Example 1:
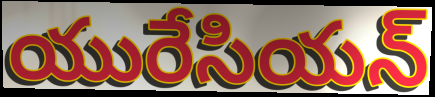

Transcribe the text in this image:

యురేసియన్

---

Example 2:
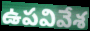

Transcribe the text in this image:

ఉపవివేశ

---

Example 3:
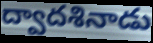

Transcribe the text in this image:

ద్వాదశినాడు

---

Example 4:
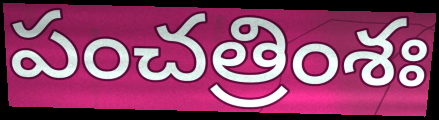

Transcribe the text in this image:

పంచత్రింశః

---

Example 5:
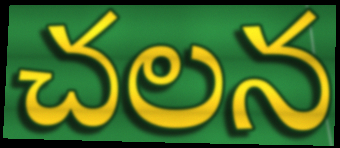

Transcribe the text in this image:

చలన